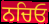
ਨਚਿਓ